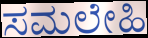
ಸಮಲೇಹಿ